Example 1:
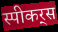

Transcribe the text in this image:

स्पीकर्स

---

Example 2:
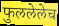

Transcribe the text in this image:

फुललेलेच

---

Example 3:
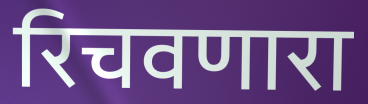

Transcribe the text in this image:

रिचवणारा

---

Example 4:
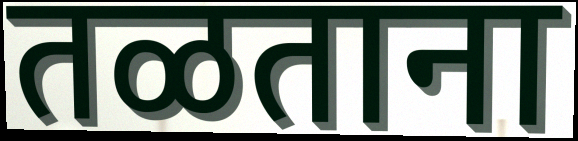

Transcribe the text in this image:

तळताना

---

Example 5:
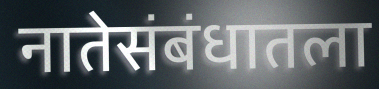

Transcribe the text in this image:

नातेसंबंधातला